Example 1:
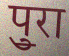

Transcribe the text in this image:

पु॒रा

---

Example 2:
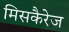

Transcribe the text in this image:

मिसकैरेज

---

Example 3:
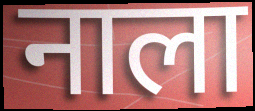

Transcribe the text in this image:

नाला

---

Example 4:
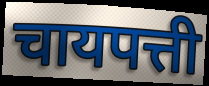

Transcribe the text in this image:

चायपत्ती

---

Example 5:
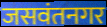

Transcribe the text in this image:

जसवंतनगर